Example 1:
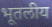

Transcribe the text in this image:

भूतलीय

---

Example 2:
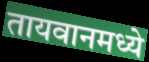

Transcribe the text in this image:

तायवानमध्ये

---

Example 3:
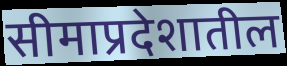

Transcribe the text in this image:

सीमाप्रदेशातील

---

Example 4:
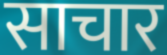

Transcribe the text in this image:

साचार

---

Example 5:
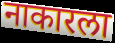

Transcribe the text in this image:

नाकारला